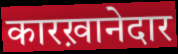
कारख़ानेदार